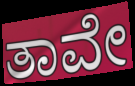
ತಾವೇ